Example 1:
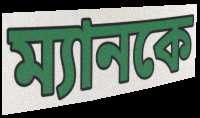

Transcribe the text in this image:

ম্যানকে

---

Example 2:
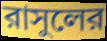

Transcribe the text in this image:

রাসুলের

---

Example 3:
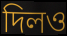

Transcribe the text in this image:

দিলও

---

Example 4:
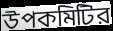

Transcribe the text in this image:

উপকমিটির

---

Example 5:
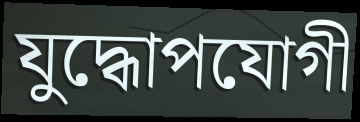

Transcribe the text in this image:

যুদ্ধোপযোগী